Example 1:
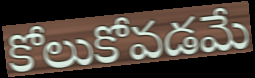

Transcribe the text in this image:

కోలుకోవడమే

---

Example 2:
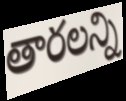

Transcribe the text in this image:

తారలన్ని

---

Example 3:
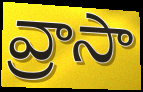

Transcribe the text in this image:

వ్రాసా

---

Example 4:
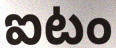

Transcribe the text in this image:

ఐటం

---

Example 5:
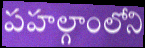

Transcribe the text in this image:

పహల్గాంలోని